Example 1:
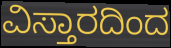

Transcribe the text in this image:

ವಿಸ್ತಾರದಿಂದ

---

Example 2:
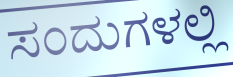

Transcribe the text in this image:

ಸಂದುಗಳಲ್ಲಿ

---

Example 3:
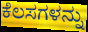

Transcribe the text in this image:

ಕೆಲಸಗಳನ್ನು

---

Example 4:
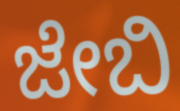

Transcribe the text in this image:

ಜೇಬಿ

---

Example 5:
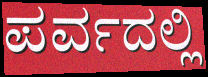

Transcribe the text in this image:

ಪರ್ವದಲ್ಲಿ